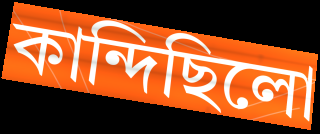
কান্দিছিলো